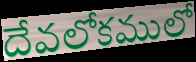
దేవలోకములో